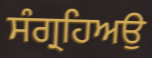
ਸੰਗ੍ਰਹਿਅਉ